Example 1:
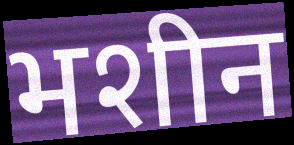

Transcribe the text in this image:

भशीन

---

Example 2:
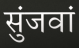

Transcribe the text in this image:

सुंजवां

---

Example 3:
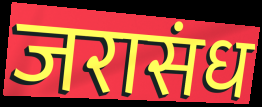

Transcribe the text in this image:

जरासंध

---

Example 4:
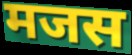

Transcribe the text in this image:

मजस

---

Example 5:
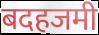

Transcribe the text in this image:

बदहजमी